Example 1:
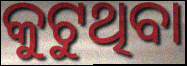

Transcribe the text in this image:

କୁଟୁଥିବା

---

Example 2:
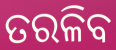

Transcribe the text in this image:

ତରଳିବ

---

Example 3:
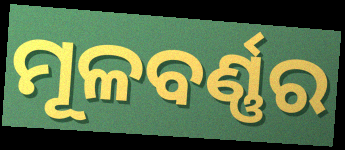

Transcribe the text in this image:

ମୂଳବର୍ଣ୍ଣର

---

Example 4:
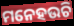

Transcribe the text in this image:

ମନେହଉଚି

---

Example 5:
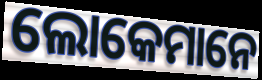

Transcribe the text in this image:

ଲୋକେମାନେ